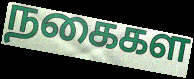
நகைகள